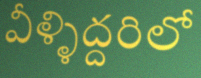
వీళ్ళిద్దరిలో